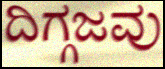
ದಿಗ್ಗಜವು